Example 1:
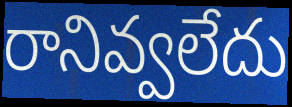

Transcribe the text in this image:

రానివ్వలేదు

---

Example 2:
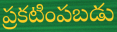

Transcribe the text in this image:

ప్రకటింపబడు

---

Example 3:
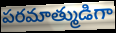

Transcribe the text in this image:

పరమాత్ముడిగా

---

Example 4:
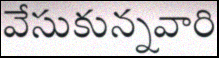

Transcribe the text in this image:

వేసుకున్నవారి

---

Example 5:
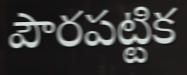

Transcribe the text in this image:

పౌరపట్టిక